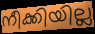
നീക്കിയില്ല